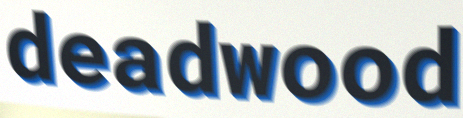
deadwood